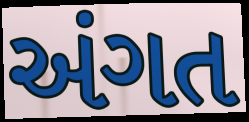
અંગત